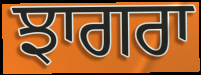
ਝਾਗਰਾ